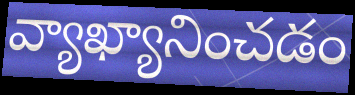
వ్యాఖ్యానించడం